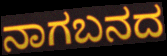
ನಾಗಬನದ